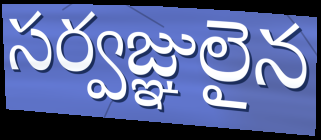
సర్వజ్ఞులైన